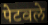
पेटवले